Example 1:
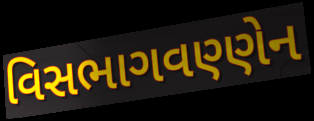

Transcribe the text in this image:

વિસભાગવણ્ણેન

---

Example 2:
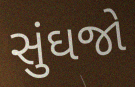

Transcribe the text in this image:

સુંઘજો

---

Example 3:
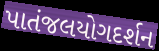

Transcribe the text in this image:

પાતંજલયોગદર્શન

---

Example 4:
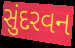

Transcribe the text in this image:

સુંદરવન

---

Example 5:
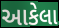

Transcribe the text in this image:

આકેલા